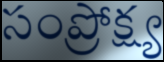
సంప్రోక్ష్య